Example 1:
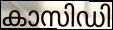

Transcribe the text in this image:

കാസിഡി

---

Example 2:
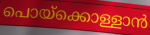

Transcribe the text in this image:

പൊയ്ക്കൊള്ളാൻ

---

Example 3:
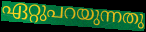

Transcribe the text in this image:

ഏറ്റുപറയുന്നതു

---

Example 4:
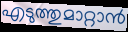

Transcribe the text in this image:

എടുത്തുമാറ്റാൻ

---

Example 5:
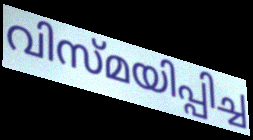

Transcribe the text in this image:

വിസ്മയിപ്പിച്ച